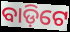
ବାଡ଼ିଟେ